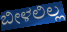
ಬೀಳಲಿಲ್ಲ